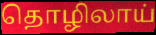
தொழிலாய்